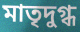
মাতৃদুগ্ধ